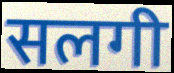
सलगी